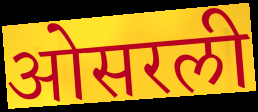
ओसरली